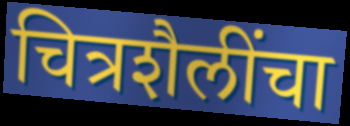
चित्रशैलींचा